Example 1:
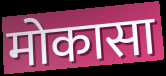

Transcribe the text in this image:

मोकासा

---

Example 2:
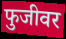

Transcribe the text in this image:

फुजीवर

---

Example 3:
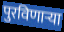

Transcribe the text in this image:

पुरविणाऱ्या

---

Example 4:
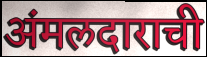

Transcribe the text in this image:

अंमलदाराची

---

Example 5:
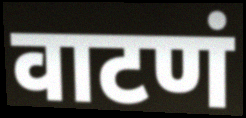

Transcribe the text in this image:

वाटणं